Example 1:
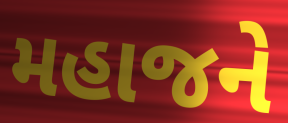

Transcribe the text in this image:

મહાજને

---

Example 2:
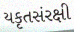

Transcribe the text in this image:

યકૃતસંરક્ષી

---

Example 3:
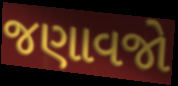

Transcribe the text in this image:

જણાવજો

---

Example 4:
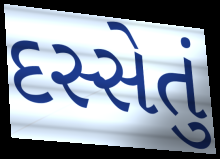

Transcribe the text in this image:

દસ્સેતું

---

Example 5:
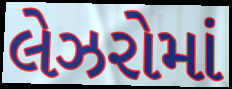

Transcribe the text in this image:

લેઝરોમાં